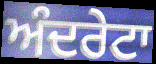
ਅੰਦਰੇਟਾ